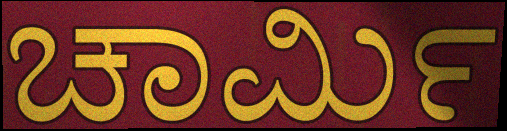
ಚಾರ್ಮಿ